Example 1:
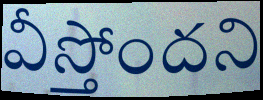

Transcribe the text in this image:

వీస్తోందని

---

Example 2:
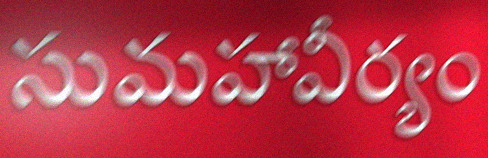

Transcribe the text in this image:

సుమహావీర్యం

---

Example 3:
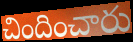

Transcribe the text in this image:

చిందించారు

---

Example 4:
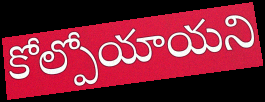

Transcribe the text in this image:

కోల్పోయాయని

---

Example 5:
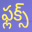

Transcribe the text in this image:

ఫ్లక్స్